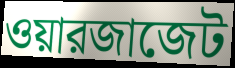
ওয়ারজাজেট